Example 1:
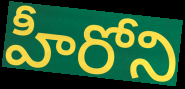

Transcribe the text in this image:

హీరోని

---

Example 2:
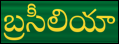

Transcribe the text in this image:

బ్రసీలియా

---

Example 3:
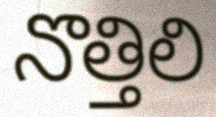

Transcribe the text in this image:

నొత్తిలి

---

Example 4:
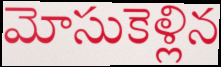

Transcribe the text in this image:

మోసుకెళ్లిన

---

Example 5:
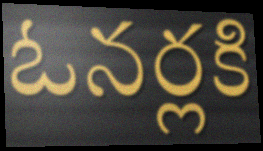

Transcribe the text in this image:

ఓనర్లకి